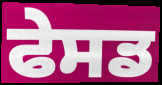
ਫੇਸਡ